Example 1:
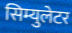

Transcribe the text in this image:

सिम्युलेटर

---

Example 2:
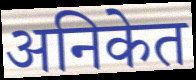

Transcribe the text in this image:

अनिकेत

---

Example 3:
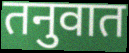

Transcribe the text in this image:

तनुवात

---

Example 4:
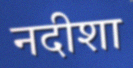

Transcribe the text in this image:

नदीशा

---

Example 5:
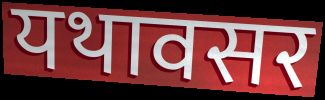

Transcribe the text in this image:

यथावसर